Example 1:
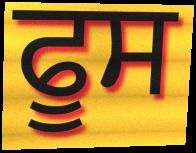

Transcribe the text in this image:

ਫੂਸ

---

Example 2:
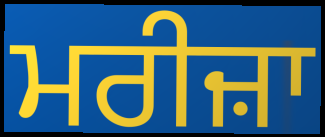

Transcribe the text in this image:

ਮਰੀਜ਼ਾ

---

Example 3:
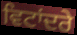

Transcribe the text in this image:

ਵਿਟਾਂਦਰੇ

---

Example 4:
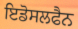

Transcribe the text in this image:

ਇਡੋਸਲਫੈਨ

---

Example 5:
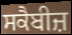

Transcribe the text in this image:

ਸਕੈਬੀਜ਼